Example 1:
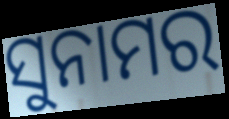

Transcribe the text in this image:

ସୁନାମର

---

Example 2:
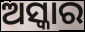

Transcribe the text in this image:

ଅସ୍କାର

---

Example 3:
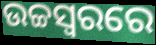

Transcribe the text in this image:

ଉଚ୍ଚସ୍ଵରରେ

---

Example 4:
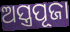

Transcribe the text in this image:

ଅସ୍ତ୍ରପୂଜା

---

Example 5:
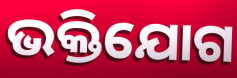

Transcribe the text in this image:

ଭକ୍ତିଯୋଗ